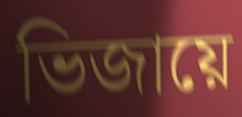
ভিজায়ে